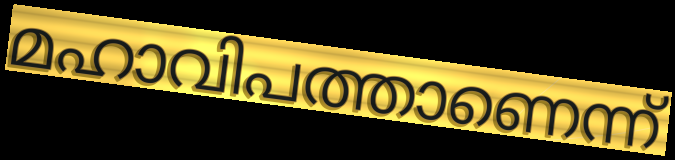
മഹാവിപത്താണെന്ന്